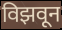
विझवून